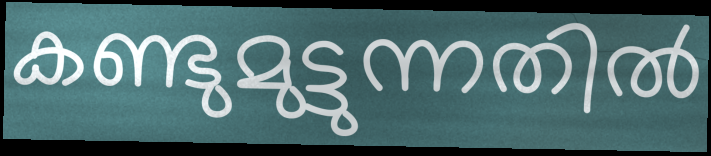
കണ്ടുമുട്ടുന്നതിൽ